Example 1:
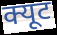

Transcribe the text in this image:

क्यूट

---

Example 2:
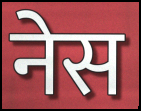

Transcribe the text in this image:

नेस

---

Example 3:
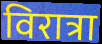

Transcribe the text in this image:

विरात्रा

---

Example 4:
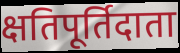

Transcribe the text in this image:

क्षतिपूर्तिदाता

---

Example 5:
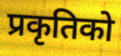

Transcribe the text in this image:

प्रकृतिको